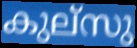
കുല്സു